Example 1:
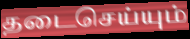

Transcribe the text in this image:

தடைசெய்யும்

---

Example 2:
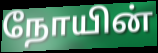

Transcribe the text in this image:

நோயின்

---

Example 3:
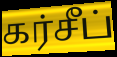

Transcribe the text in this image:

கர்சீப்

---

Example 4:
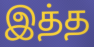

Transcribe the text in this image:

இத்த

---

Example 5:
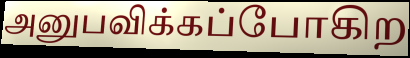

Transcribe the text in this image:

அனுபவிக்கப்போகிற